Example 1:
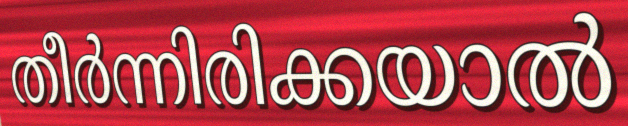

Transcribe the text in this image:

തീർന്നിരിക്കയാൽ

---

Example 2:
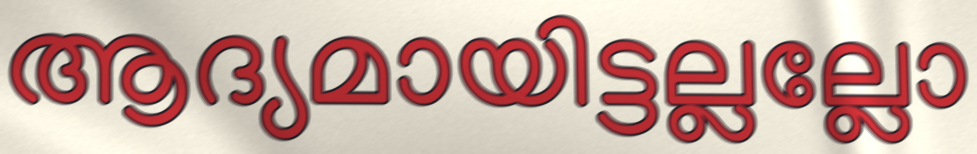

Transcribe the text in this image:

ആദ്യമായിട്ടല്ലല്ലോ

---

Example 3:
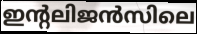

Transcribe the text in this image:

ഇന്റലിജൻസിലെ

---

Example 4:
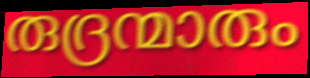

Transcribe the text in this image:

രുദ്രന്മാരും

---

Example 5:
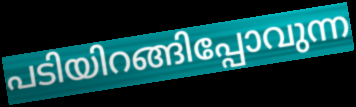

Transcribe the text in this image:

പടിയിറങ്ങിപ്പോവുന്ന